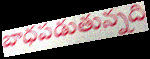
బాధపడుతున్నది